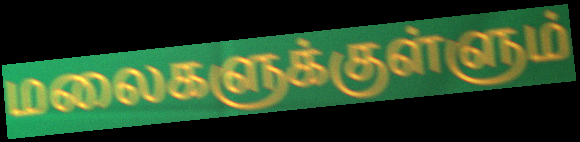
மலைகளுக்குள்ளும்